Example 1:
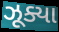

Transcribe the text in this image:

ઝૂક્યા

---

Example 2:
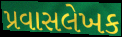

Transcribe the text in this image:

પ્રવાસલેખક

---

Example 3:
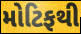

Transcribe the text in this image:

મોટિફથી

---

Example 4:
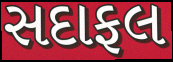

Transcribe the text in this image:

સદાફલ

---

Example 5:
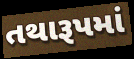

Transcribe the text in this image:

તથારૂપમાં